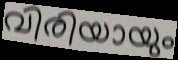
വിരിയായും